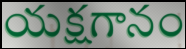
యక్షగానం